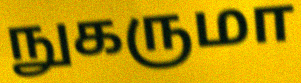
நுகருமா